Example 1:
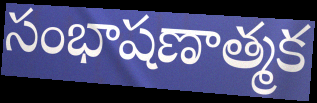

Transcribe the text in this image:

సంభాషణాత్మక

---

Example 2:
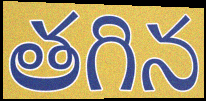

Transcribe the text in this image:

తగిన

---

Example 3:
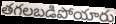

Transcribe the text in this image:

తగలబడిపోయారు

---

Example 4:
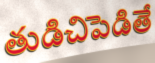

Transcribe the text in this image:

తుడిచిపెడితే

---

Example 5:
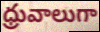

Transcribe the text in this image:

ధ్రువాలుగా